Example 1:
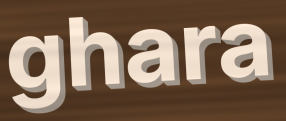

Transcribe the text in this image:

ghara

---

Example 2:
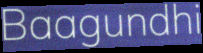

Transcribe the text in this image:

Baagundhi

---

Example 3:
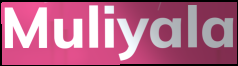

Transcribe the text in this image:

Muliyala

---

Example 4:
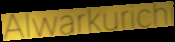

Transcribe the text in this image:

Alwarkurichi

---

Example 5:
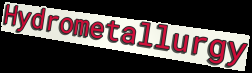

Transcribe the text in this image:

Hydrometallurgy